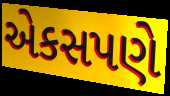
એકસપણે